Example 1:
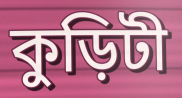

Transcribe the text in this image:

কুড়িটী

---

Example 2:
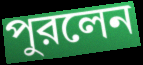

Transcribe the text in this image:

পুরলেন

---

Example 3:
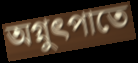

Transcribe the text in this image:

অগ্নুৎপাতে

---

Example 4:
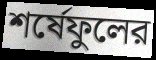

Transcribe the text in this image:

শর্ষেফুলের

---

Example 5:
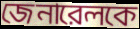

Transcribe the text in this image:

জেনারেলকে